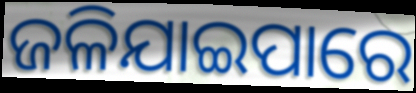
ଜଳିଯାଇପାରେ